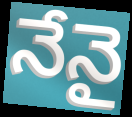
నేనై